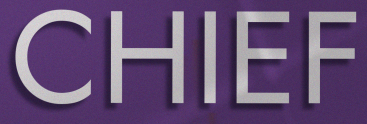
CHIEF